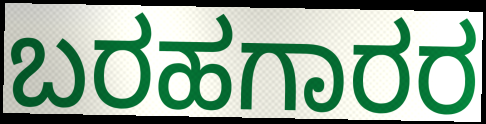
ಬರಹಗಾರರ